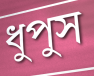
ধুপুস